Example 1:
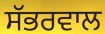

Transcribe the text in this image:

ਸੱਭਰਵਾਲ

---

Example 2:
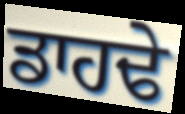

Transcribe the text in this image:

ਡਾਹਢੇ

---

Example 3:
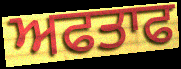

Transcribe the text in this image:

ਅਫਤਾਫ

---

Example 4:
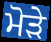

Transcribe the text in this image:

ਮੋੜੇ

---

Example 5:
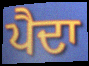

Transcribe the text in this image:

ਪੈਦਾ